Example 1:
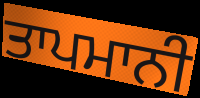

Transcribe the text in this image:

ਤਾਪਮਾਨੀ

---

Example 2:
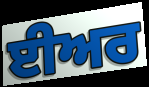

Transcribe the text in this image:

ਈਅਰ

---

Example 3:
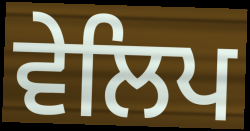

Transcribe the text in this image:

ਵੇਲਿਪ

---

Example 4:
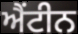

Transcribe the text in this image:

ਐਂਟੀਨ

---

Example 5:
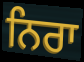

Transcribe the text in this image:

ਨਿਰਾ